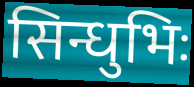
सिन्धुभिः